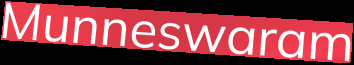
Munneswaram